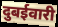
दुबईवारी